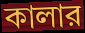
কালার